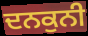
ਦਨਕੁਨੀ